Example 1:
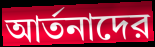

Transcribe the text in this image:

আর্তনাদের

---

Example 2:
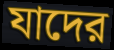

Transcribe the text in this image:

যাদের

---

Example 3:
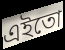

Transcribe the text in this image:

এইতো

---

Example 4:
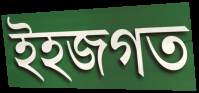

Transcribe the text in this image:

ইহজগত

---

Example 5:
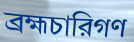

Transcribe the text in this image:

ব্রহ্মচারিগণ